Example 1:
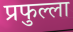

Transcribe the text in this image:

प्रफुल्ला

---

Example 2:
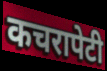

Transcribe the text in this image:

कचरापेटी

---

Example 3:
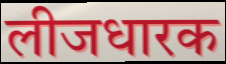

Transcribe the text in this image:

लीजधारक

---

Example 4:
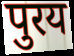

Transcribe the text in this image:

पुरय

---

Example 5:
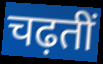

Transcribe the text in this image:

चढ़तीं